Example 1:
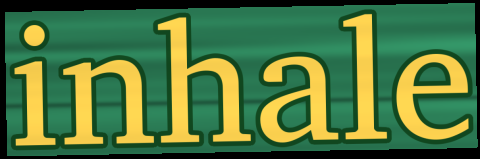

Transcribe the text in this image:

inhale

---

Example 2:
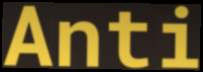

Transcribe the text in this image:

Anti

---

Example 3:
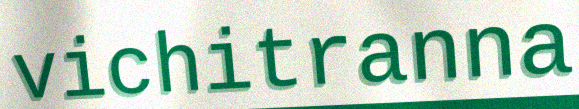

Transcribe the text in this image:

vichitranna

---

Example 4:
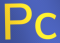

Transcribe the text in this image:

Pc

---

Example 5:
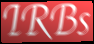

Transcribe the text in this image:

IRBs